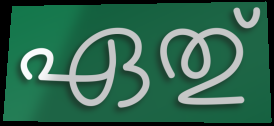
ഏതു്